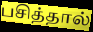
பசித்தால்